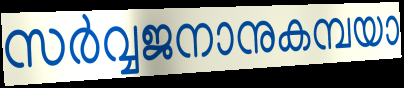
സർവ്വജനാനുകമ്പയാ